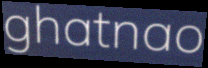
ghatnao